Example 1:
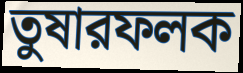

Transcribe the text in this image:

তুষারফলক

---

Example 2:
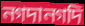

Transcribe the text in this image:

নগদানগদি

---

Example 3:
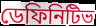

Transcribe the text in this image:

ডেফিনিটিভ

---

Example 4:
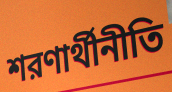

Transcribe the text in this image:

শরণার্থীনীতি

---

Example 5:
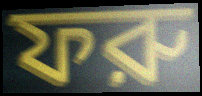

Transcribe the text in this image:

ফরু